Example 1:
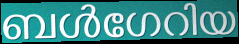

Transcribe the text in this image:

ബൾഗേറിയ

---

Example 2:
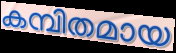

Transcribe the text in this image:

കമ്പിതമായ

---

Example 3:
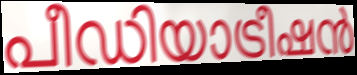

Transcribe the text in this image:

പീഡിയാട്രീഷൻ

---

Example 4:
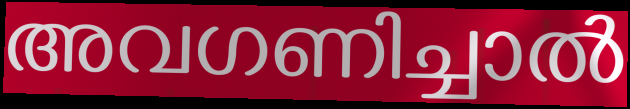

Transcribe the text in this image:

അവഗണിച്ചാൽ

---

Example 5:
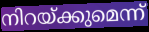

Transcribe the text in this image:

നിറയ്ക്കുമെന്ന്